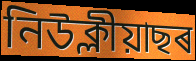
নিউক্লীয়াছৰ